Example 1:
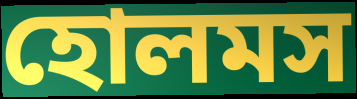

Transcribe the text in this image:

হোলমস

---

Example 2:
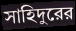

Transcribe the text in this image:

সাহিদুরের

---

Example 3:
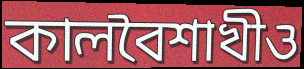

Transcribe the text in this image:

কালবৈশাখীও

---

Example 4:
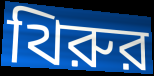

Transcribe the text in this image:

থিরুর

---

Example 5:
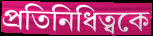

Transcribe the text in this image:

প্রতিনিধিত্বকে